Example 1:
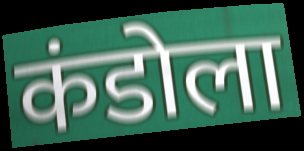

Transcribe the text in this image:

कंडोला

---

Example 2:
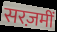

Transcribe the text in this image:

सरज़मीं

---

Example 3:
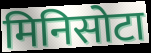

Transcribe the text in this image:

मिनिसोटा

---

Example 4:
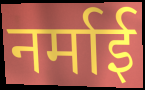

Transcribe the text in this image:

नर्माई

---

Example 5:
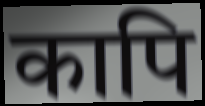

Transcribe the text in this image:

कापि